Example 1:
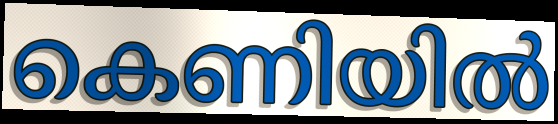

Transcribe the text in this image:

കെണിയിൽ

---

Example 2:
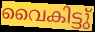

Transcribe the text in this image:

വൈകിട്ടു്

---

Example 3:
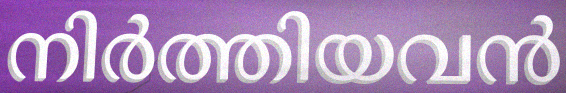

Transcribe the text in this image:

നിർത്തിയവൻ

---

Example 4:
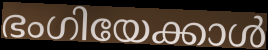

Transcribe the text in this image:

ഭംഗിയേക്കാൾ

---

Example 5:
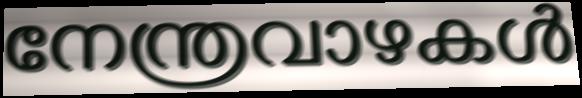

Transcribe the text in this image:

നേന്ത്രവാഴകൾ